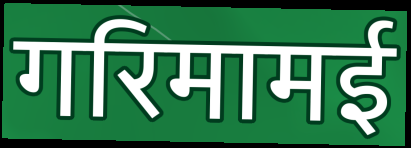
गरिमामई